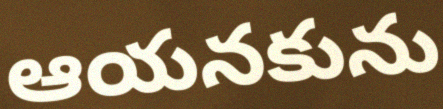
ఆయనకును